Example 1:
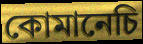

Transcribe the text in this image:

কোমানেচি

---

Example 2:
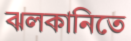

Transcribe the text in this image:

ঝলকানিতে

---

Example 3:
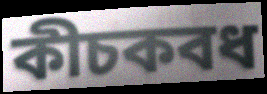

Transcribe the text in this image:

কীচকবধ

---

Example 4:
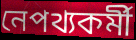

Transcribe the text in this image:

নেপথ্যকর্মী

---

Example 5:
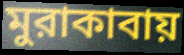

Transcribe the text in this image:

মুরাকাবায়